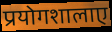
प्रयोगशालाए